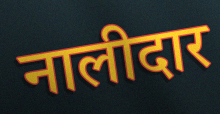
नालीदार